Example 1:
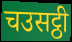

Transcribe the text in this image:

चउसट्ठी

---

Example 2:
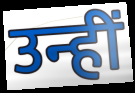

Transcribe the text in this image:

उन्हीं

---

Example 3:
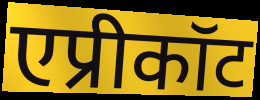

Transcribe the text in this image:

एप्रीकॉट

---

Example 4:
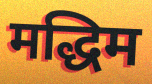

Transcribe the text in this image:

मद्धिम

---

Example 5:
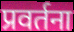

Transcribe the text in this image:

प्रवर्तना